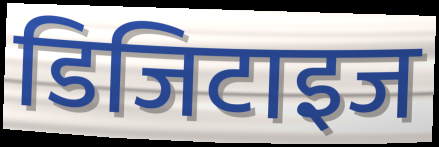
डिजिटाइज